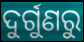
ଦୁର୍ଗୁଣରୁ